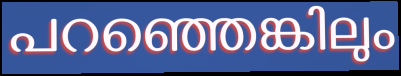
പറഞ്ഞെങ്കിലും